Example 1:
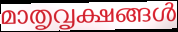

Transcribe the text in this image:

മാതൃവൃക്ഷങ്ങൾ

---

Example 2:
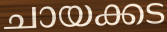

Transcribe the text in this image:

ചായക്കട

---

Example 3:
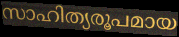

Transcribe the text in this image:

സാഹിത്യരൂപമായ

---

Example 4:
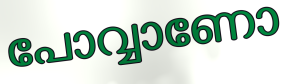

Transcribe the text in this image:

പോവ്വാണോ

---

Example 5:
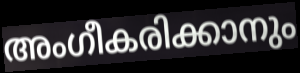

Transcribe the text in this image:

അംഗീകരിക്കാനും